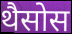
थैसोस